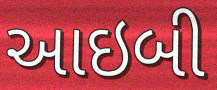
આઇબી